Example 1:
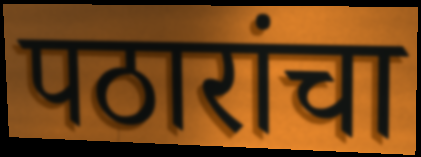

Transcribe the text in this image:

पठारांचा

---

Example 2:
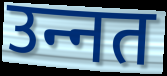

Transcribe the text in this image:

उन्नत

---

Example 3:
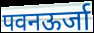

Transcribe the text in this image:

पवनऊर्जा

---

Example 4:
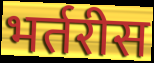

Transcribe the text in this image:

भर्तरीस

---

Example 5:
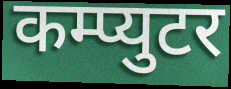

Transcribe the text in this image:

कम्प्युटर